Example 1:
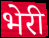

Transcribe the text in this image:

भेरी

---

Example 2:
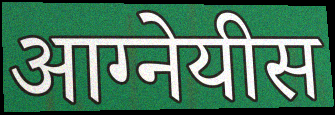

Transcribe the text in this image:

आग्नेयीस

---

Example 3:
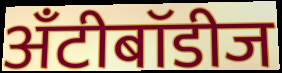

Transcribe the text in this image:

अँटीबॉडीज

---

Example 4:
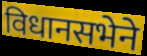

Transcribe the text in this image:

विधानसभेने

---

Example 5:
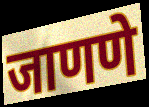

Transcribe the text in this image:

जाणणे